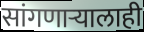
सांगणाऱ्यालाही